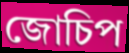
জোচিপ